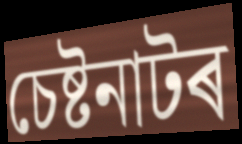
চেষ্টনাটৰ